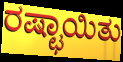
ರಷ್ಟಾಯಿತು